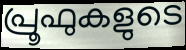
പ്രൂഫുകളുടെ